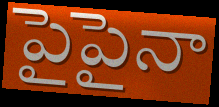
పైపైనా